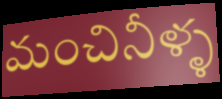
మంచినీళ్ళ